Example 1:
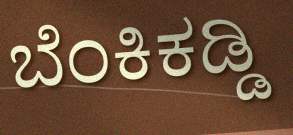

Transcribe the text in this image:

ಬೆಂಕಿಕಡ್ಡಿ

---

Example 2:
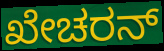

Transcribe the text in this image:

ಖೇಚರನ್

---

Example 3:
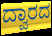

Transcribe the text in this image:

ದ್ವಾರದ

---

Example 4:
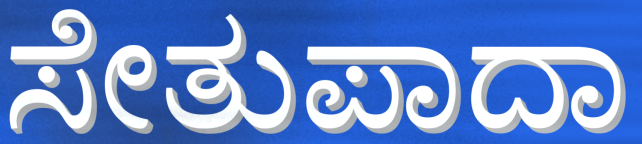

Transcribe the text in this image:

ಸೇತುಪಾದಾ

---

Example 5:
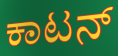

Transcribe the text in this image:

ಕಾಟನ್